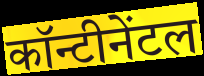
कॉन्टीनेंटल